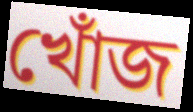
খোঁজ